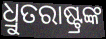
ଧ୍ରୁତରାଷ୍ଟ୍ରଙ୍କ